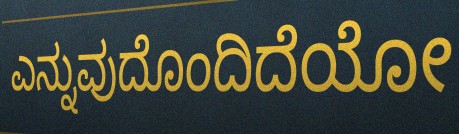
ಎನ್ನುವುದೊಂದಿದೆಯೋ